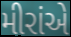
મીરાંએ